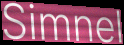
Simnel